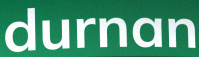
durnan